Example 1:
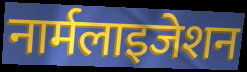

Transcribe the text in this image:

नार्मलाइजेशन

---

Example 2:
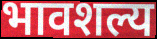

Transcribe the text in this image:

भावशल्य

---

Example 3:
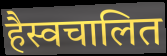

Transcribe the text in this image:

हैस्वचालित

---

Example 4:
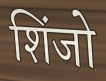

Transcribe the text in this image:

शिंजो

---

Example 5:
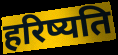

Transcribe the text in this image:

हरिष्यति